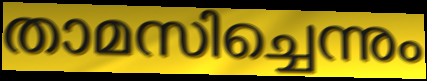
താമസിച്ചെന്നും